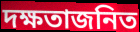
দক্ষতাজনিত